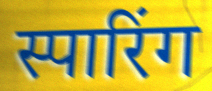
स्पारिंग